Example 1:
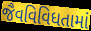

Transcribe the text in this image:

જૈવવિવિધતામાં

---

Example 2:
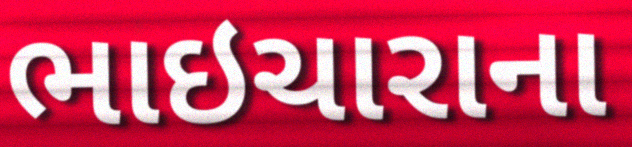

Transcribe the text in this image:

ભાઇચારાના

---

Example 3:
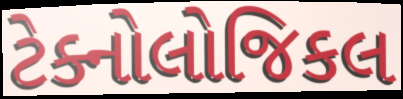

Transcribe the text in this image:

ટેક્નોલોજિકલ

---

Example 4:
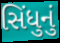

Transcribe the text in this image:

સિંધુનું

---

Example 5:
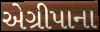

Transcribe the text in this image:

એગ્રીપાના